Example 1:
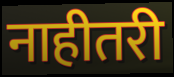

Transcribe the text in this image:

नाहीतरी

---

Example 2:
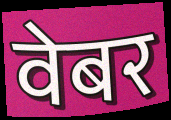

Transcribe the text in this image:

वेबर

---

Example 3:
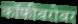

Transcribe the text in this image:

कॉफीबरोबर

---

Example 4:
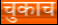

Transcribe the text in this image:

चुकाच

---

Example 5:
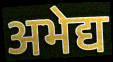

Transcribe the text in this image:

अभेद्य